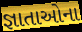
જ્ઞાતાઓના